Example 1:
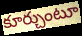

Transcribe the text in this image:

కూర్చుంటూ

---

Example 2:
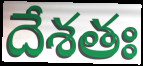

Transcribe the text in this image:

దేశతః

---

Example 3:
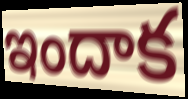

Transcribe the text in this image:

ఇందాక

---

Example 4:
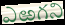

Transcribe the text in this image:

ఎఱగని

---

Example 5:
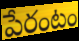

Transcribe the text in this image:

పేరంటం